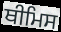
ਥੀਮਿਸ